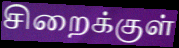
சிறைக்குள்